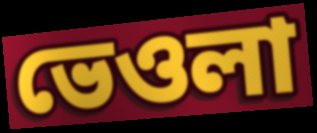
ভেওলা